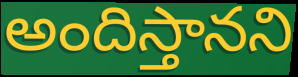
అందిస్తానని